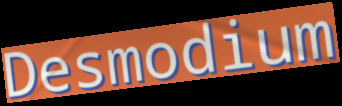
Desmodium